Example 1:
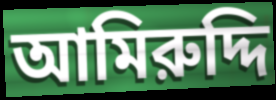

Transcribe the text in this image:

আমিরুদ্দি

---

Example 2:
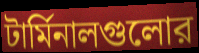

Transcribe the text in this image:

টার্মিনালগুলোর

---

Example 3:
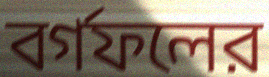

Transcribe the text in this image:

বর্গফলের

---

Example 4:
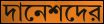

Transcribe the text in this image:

দানেশদের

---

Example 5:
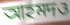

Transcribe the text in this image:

আহমদও